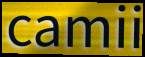
camii